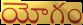
యోగం